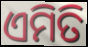
ଏମିତି